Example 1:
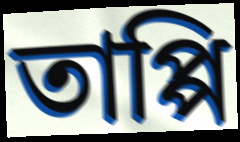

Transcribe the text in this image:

তাপ্পি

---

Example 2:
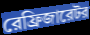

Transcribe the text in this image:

রেফ্রিজারেটর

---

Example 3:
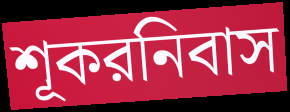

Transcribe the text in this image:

শূকরনিবাস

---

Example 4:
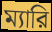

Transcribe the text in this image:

ম্যারি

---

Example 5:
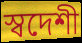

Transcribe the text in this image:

স্বদেশী